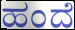
ಹಂದೆ